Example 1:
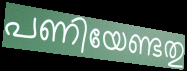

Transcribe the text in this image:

പണിയേണ്ടതു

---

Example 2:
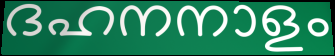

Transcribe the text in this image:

ദഹനനാളം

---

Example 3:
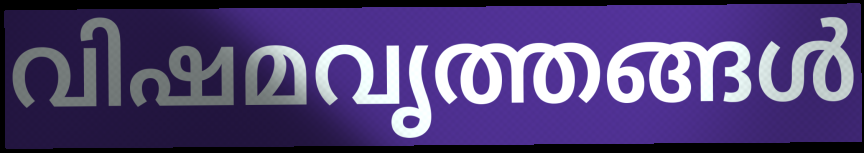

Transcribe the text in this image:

വിഷമവൃത്തങ്ങൾ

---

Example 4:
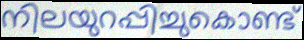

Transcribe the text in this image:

നിലയുറപ്പിച്ചുകൊണ്ട്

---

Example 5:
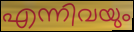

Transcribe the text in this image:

എന്നിവയും